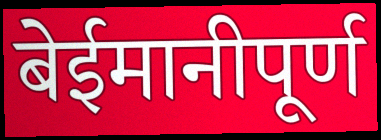
बेईमानीपूर्ण